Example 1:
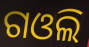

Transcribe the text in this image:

ଗଓଲି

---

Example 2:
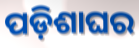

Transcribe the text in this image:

ପଡ଼ିଶାଘର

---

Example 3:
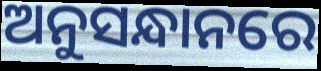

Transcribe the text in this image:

ଅନୁସନ୍ଧାନରେ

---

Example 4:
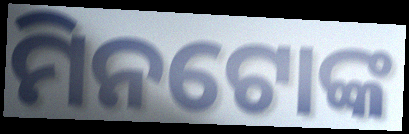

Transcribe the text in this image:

ମିନଟୋଙ୍କ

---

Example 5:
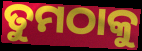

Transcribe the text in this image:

ତୁମଠାକୁ